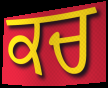
ਕਚ